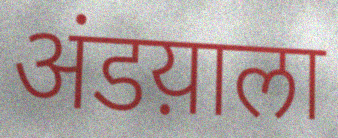
अंडय़ाला